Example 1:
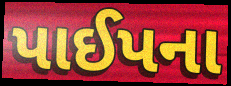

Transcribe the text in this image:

પાઈપના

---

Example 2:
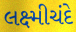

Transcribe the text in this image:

લક્ષ્મીચંદે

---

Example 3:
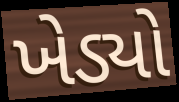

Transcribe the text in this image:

ખેડ્યો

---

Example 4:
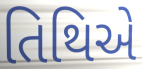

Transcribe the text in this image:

તિથિએ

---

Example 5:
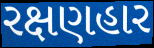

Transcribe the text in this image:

રક્ષણહાર